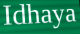
Idhaya